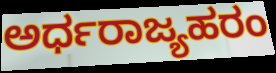
ಅರ್ಧರಾಜ್ಯಹರಂ